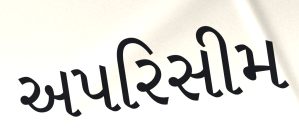
અપરિસીમ